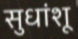
सुधांशू